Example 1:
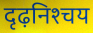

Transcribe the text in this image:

दृढ़निश्चय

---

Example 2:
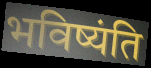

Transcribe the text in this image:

भविष्यंति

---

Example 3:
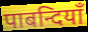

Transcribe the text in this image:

पाबन्दियाँ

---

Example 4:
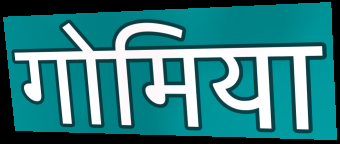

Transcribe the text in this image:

गोमिया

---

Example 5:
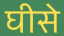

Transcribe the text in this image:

घीसे